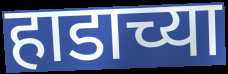
हाडाच्या